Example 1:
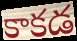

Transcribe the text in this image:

కాకడ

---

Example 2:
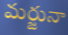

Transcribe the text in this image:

మర్జునా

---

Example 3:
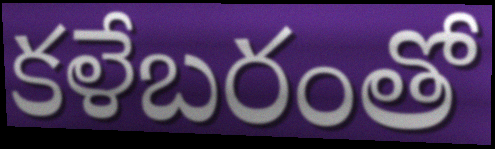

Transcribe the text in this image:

కళేబరంతో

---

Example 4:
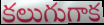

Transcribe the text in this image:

కలుగుగాక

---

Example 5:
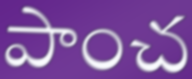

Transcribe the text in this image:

పాంచ